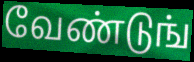
வேண்டுங்